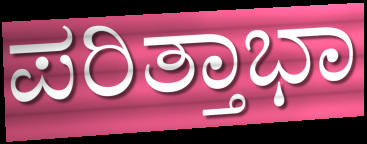
ಪರಿತ್ತಾಭಾ